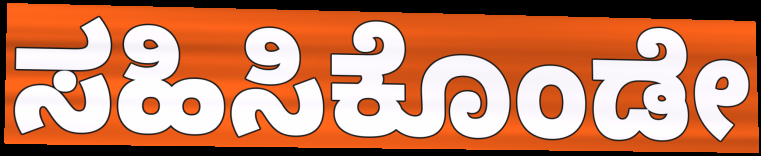
ಸಹಿಸಿಕೊಂಡೇ